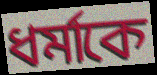
ধর্মাকে